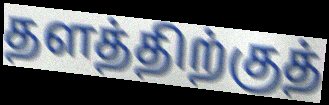
தளத்திற்குத்